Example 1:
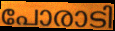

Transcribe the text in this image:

പോരാടി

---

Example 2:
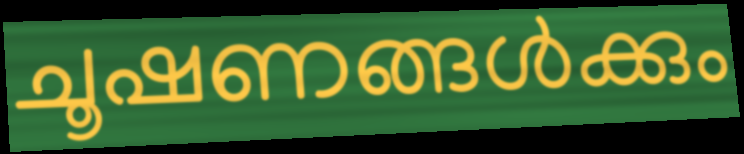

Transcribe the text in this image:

ചൂഷണങ്ങൾക്കും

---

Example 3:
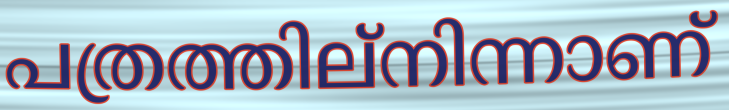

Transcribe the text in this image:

പത്രത്തില്നിന്നാണ്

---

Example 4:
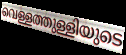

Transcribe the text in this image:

വെള്ളത്തുള്ളിയുടെ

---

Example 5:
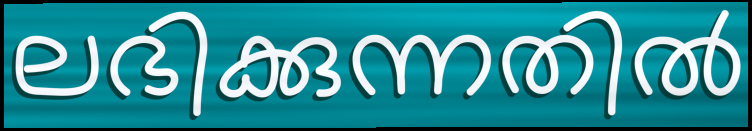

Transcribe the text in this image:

ലഭിക്കുന്നതിൽ